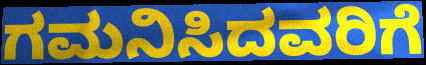
ಗಮನಿಸಿದವರಿಗೆ